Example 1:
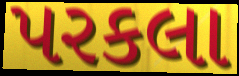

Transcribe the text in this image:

પરકલા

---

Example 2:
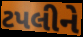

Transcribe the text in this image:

ટપલીને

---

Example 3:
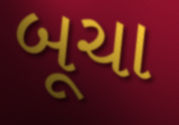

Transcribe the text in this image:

બૂચા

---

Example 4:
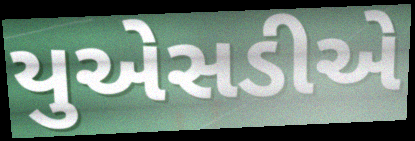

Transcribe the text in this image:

યુએસડીએ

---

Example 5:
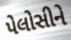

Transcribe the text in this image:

પેલોસીને